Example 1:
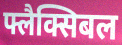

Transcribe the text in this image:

फ्लैक्सिबल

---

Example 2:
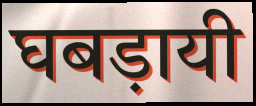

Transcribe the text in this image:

घबड़ायी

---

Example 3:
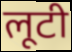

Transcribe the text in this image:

लूटी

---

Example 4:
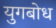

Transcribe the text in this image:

युगबोध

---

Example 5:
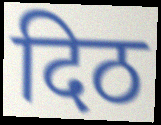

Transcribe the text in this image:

दिठ